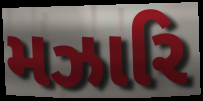
મઝારિ